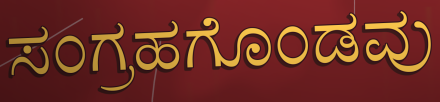
ಸಂಗ್ರಹಗೊಂಡವು